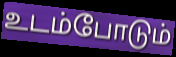
உடம்போடும்